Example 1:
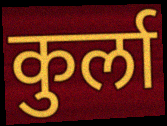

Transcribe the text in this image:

कुर्ला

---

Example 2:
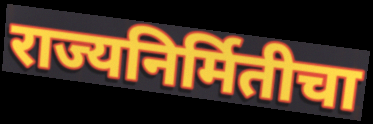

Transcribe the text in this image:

राज्यनिर्मितीचा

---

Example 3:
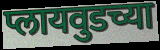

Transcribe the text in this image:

प्लायवुडच्या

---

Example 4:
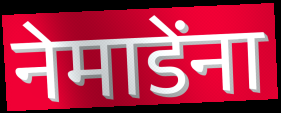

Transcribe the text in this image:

नेमाडेंना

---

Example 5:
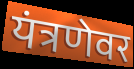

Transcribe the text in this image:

यंत्रणेवर